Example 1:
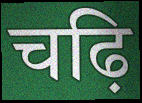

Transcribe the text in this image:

चढ़ि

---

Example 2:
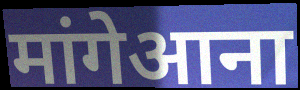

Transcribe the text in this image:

मांगेआना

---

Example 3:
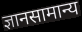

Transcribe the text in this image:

ज्ञानसामान्य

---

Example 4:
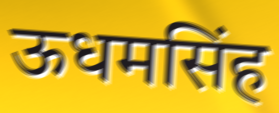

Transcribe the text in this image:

ऊधमसिंह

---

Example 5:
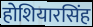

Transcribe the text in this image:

होशियारसिंह